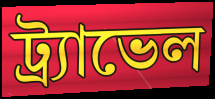
ট্র্যাভেল